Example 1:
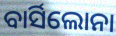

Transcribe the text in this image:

ବାର୍ସିଲୋନା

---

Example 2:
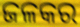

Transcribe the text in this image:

ଜଳକର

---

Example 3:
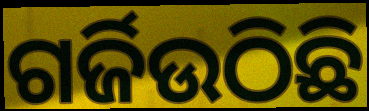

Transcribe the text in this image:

ଗର୍ଜିଉଠିଛି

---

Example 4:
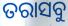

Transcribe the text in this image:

ତରାସବୁ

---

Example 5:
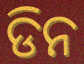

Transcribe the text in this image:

ଡିନ